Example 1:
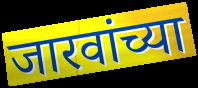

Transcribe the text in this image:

जारवांच्या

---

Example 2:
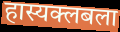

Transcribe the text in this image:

हास्यक्लबला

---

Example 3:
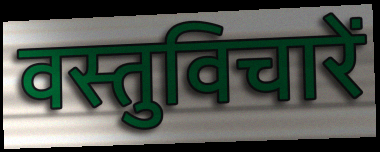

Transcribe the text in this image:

वस्तुविचारें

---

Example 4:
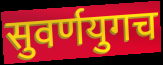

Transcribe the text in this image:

सुवर्णयुगच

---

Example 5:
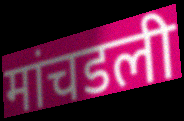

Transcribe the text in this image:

मांचडली